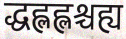
द्धह्लह्लश्चह्य